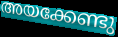
അയക്കേണ്ടു